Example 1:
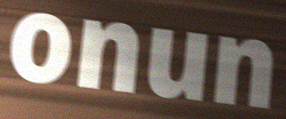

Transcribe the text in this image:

onun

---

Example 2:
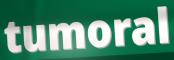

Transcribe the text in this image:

tumoral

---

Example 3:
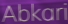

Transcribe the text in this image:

Abkari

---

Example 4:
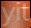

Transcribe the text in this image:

yit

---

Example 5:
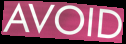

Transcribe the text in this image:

AVOID